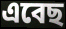
এবেছ